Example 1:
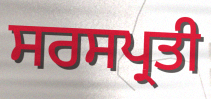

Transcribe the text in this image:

ਸਰਸਪ੍ਰਤੀ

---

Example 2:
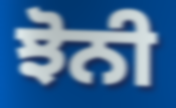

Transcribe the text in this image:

ਝੋਨੀ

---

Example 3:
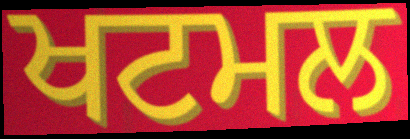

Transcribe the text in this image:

ਖਟਮਲ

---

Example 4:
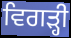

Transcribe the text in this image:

ਵਿਗੜ੍ਹੀ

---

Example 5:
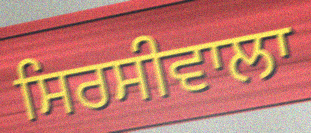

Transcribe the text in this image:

ਸਿਰਸੀਵਾਲਾ